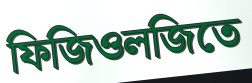
ফিজিওলজিতে